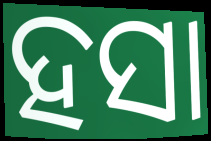
ହସା